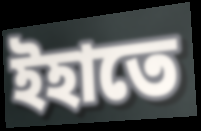
ইহাতে